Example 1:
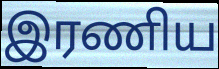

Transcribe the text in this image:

இரணிய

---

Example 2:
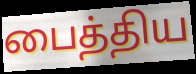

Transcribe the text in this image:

பைத்திய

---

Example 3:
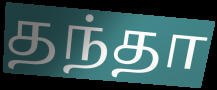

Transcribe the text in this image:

தந்தா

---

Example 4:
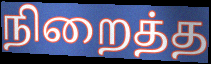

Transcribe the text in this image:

நிறைத்த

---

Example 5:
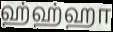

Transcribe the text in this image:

ஹ்ஹ்ஹா